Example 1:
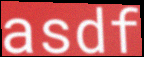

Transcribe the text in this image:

asdf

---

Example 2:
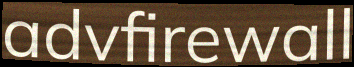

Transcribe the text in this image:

advfirewall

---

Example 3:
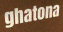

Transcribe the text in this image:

ghatona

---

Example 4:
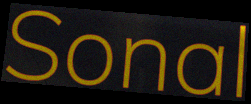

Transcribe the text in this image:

Sonal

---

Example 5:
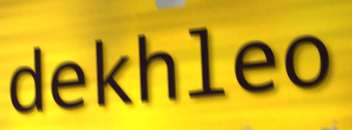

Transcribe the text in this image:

dekhleo